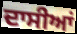
ਦਾਸੀਆਂ